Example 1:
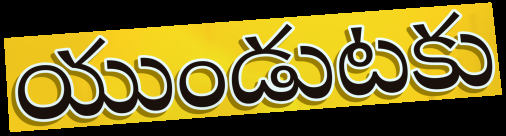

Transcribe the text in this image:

యుండుటకు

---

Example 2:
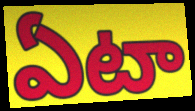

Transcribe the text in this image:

ఏటా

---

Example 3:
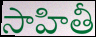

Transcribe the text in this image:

సాహితీ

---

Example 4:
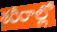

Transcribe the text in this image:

శరీరాల్లో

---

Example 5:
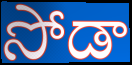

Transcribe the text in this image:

సోడా